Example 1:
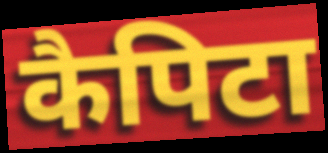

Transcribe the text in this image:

कैपिटा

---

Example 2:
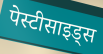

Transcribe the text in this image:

पेस्टीसाइड्स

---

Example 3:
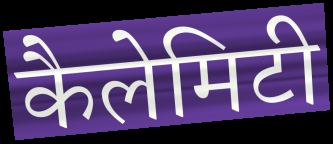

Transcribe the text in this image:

कैलेमिटी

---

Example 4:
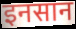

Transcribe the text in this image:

इनसान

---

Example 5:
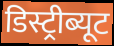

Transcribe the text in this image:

डिस्ट्रीब्यूट